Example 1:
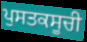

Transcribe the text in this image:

ਪੁਸਤਕਸੂਚੀ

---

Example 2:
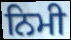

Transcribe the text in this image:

ਨਿਮੀ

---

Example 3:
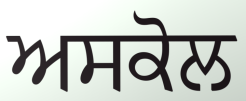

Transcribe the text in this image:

ਅਸਕੋਲ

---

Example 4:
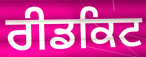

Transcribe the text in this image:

ਰੀਡਕਿਟ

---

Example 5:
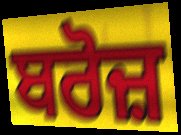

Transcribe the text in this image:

ਬਰੋਜ਼